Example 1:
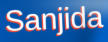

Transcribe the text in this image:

Sanjida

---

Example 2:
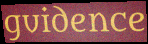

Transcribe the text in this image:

guidence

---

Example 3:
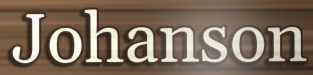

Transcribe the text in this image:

Johanson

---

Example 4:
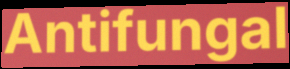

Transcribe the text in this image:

Antifungal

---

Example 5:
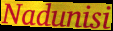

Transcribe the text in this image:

Nadunisi